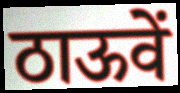
ठाऊवें